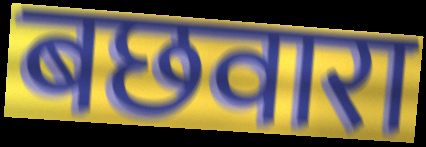
बछवारा